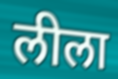
लीला